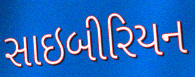
સાઇબીરિયન